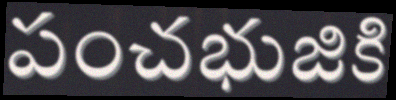
పంచభుజికి